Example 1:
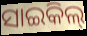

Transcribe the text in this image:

ସାଇକିଲ୍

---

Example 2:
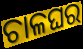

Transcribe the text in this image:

ଚାଳଘର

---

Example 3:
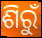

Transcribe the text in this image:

ଶିରୁଁ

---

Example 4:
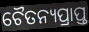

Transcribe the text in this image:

ଚୈତନ୍ୟପ୍ରାପ୍ତ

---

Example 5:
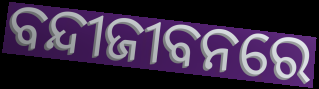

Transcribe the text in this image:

ବନ୍ଦୀଜୀବନରେ